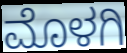
ಮೊಳಗಿ